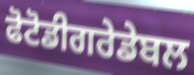
ਫੋਟੋਡੀਗਰੇਡੇਬਲ